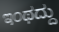
ಇಂಥದ್ದು